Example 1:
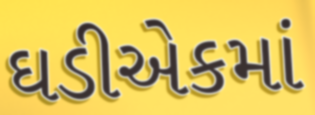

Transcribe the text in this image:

ઘડીએકમાં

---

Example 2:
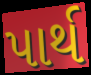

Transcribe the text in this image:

પાર્થ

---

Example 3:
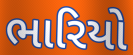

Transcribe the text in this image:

ભારિયો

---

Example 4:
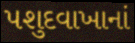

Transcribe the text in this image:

પશુદવાખાનાં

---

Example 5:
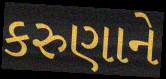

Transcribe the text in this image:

કરુણાને